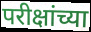
परीक्षांच्या